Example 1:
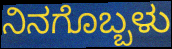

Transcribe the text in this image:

ನಿನಗೊಬ್ಬಳು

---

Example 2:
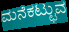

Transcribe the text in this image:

ಮನೆಕಟ್ಟುವ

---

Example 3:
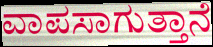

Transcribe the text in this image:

ವಾಪಸಾಗುತ್ತಾನೆ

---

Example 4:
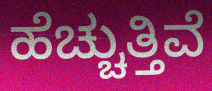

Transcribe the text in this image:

ಹೆಚ್ಚುತ್ತಿವೆ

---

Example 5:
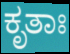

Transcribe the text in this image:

ಕೃತಾಃ